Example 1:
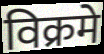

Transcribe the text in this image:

विक्रमे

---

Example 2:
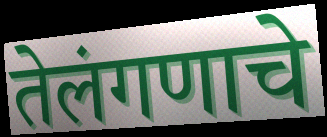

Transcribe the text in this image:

तेलंगणाचे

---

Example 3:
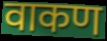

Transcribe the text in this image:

वाकण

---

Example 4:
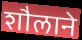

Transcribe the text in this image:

शौलाने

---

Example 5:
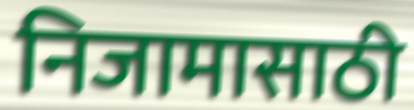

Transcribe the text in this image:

निजामासाठी